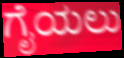
ಗೈಯಲು